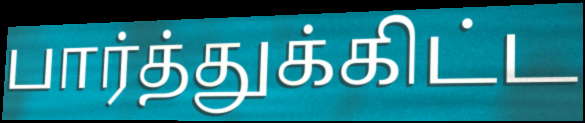
பார்த்துக்கிட்ட